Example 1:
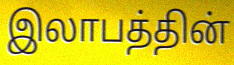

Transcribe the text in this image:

இலாபத்தின்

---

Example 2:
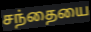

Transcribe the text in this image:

சந்தையை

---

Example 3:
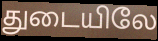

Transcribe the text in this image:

துடையிலே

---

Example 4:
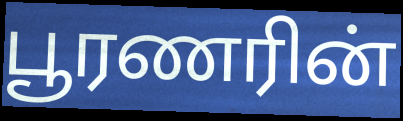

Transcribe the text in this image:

பூரணரின்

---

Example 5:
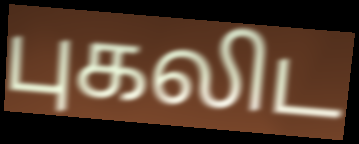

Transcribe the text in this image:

புகலிட